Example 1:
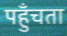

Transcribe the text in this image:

पहुँचता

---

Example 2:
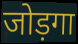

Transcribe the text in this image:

जोड़गा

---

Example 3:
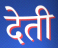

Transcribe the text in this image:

देती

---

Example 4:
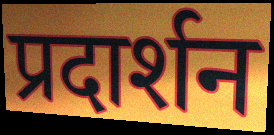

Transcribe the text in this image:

प्रदार्शन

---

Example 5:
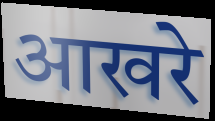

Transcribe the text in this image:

आखरे